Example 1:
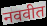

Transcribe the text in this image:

नववीत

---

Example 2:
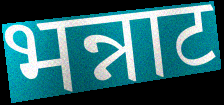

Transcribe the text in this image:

भन्नाट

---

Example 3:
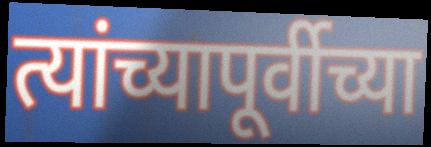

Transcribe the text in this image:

त्यांच्यापूर्वीच्या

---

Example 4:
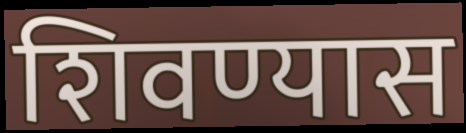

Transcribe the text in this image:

शिवण्यास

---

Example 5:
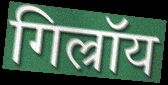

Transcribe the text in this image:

गिल्रॉय